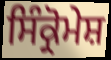
ਸਿੰਕ੍ਰੋਮੇਸ਼